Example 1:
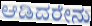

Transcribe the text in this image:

ಆಡಿದರೇನು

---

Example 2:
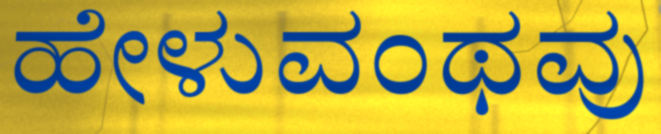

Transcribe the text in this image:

ಹೇಳುವಂಥವು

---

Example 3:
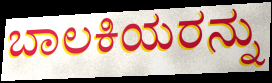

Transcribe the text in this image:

ಬಾಲಕಿಯರನ್ನು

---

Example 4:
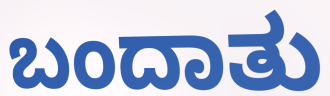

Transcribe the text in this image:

ಬಂದಾತು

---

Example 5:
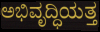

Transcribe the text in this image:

ಅಭಿವೃದ್ಧಿಯತ್ತ